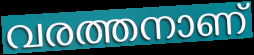
വരത്തനാണ്